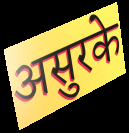
असुरके